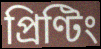
প্ৰিণ্টিং